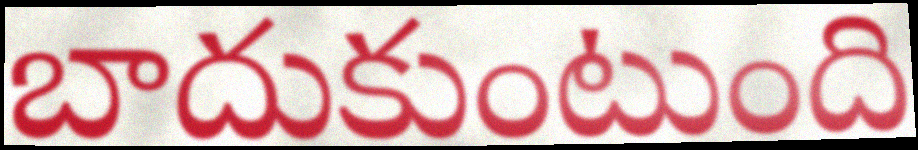
బాదుకుంటుంది